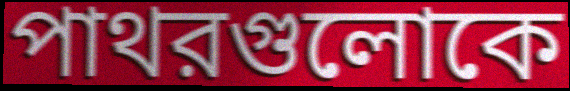
পাথরগুলোকে